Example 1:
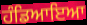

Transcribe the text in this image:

ਹੰਡਿਆਇਆ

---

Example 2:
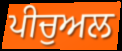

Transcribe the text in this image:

ਪੀਚੁਅਲ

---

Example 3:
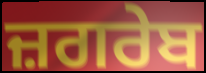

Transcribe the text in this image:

ਜ਼ਗਰੇਬ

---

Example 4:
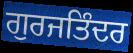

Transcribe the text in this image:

ਗੁਰਜਤਿੰਦਰ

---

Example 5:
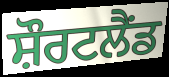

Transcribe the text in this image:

ਸ਼ੌਰਟਲੈਂਡ